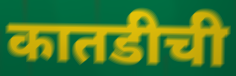
कातडीची